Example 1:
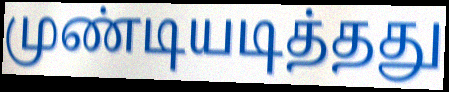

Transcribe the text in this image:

முண்டியடித்தது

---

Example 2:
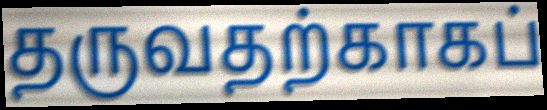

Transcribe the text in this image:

தருவதற்காகப்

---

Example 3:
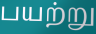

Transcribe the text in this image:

பயற்று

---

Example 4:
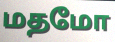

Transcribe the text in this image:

மதமோ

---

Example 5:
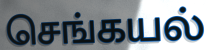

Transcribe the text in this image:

செங்கயல்